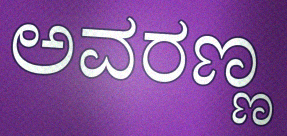
ಅವರಣ್ಣ